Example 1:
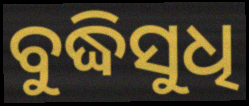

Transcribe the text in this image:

ବୁଦ୍ଧିସୁଧି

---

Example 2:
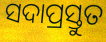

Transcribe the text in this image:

ସଦାପ୍ରସ୍ତୁତ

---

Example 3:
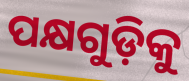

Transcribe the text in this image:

ପକ୍ଷଗୁଡ଼ିକୁ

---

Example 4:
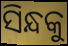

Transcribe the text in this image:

ସିନ୍ଧକୁ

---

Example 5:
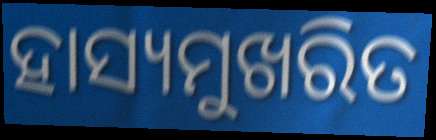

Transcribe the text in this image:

ହାସ୍ୟମୁଖରିତ